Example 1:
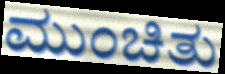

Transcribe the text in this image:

ಮುಂಚಿತು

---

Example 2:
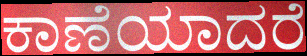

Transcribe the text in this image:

ಕಾಣೆಯಾದರೆ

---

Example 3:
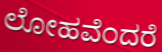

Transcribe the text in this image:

ಲೋಹವೆಂದರೆ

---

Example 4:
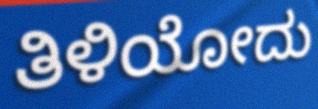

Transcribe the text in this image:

ತಿಳಿಯೋದು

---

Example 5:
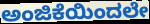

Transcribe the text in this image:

ಅಂಜಿಕೆಯಿಂದಲೇ